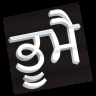
ਭੂਮੈ